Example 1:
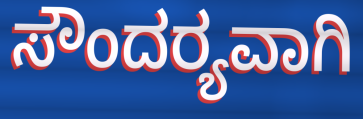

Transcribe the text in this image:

ಸೌಂದರ‍್ಯವಾಗಿ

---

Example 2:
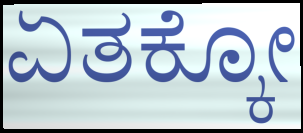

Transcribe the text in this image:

ಏತಕ್ಕೋ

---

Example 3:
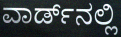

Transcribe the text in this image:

ವಾರ್ಡ್‌ನಲ್ಲಿ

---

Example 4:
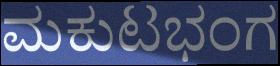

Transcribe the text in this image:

ಮಕುಟಭಂಗ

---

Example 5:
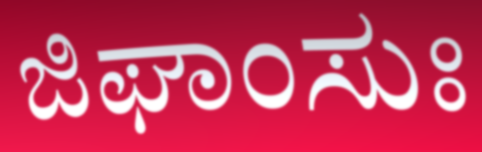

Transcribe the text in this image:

ಜಿಘಾಂಸುಃ